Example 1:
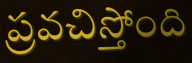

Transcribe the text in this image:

ప్రవచిస్తోంది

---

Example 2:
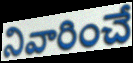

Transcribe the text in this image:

నివారించే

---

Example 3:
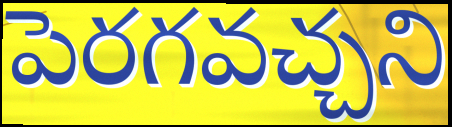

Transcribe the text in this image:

పెరగవచ్చని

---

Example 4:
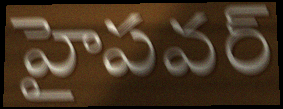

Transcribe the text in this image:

హైపవర్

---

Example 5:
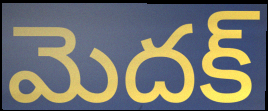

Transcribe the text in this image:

మెదక్